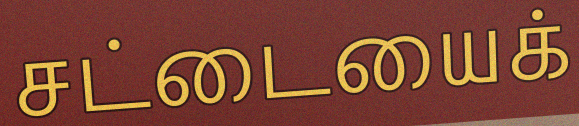
சட்டையைக்